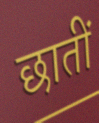
छातीं